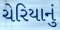
ચેરિયાનું